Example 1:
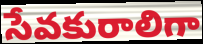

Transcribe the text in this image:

సేవకురాలిగా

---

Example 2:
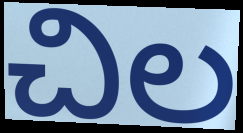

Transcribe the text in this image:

చిల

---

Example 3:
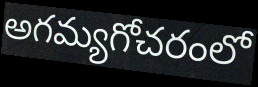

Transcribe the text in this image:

అగమ్యగోచరంలో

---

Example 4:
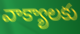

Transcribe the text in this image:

వాక్యాలకు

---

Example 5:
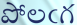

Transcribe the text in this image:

పోలఁగ